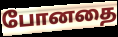
போனதை